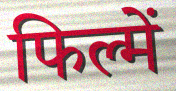
फिल्में